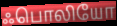
ஃபொலியோ